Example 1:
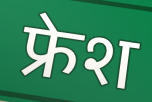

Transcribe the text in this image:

फ्रेश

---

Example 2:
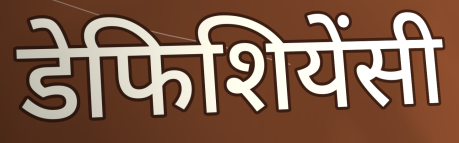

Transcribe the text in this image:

डेफिशियेंसी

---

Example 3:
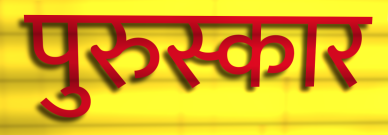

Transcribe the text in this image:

पुरुस्‍कार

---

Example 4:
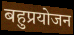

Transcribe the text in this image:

बहुप्रयोजन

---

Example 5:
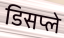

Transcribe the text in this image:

डिसप्ले